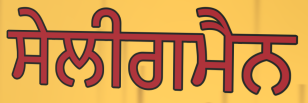
ਸੇਲੀਗਮੈਨ